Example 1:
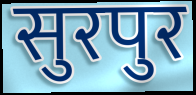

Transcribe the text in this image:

सुरपुर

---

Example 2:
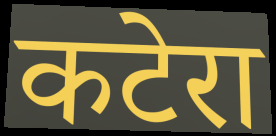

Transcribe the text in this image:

कटेरा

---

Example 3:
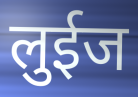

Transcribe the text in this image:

लुईज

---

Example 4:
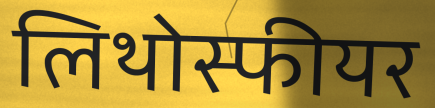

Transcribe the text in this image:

लिथोस्फीयर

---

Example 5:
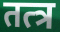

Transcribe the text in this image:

तत्त्र